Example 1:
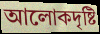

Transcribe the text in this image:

আলোকদৃষ্টি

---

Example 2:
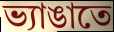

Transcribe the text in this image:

ভ্যাঙাতে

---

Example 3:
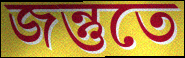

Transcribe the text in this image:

জন্তুতে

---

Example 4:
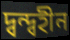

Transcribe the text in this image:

দ্বন্দ্বহীন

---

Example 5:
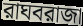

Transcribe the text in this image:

রাঘবরাজা